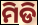
ମିଡି